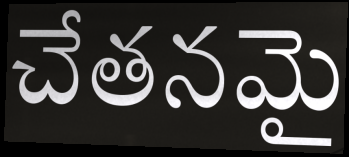
చేతనమై